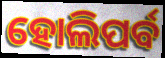
ହୋଲିପର୍ବ